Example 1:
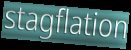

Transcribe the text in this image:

stagflation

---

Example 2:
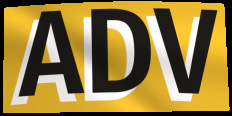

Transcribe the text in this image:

ADV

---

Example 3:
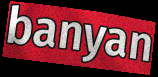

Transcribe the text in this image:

banyan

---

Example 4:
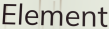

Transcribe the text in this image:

Element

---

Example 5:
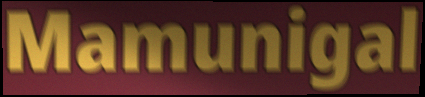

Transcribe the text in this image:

Mamunigal